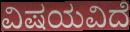
ವಿಷಯವಿದೆ